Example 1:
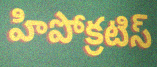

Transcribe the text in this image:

హిపోక్రటిస్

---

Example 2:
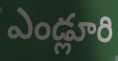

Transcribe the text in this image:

ఎండ్లూరి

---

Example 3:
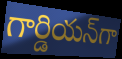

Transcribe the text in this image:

గార్డియన్‌గా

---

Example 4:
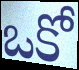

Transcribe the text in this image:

ఒకో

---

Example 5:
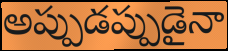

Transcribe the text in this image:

అప్పుడప్పుడైనా